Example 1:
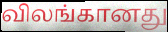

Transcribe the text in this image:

விலங்கானது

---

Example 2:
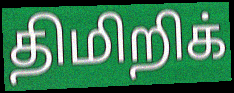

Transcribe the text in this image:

திமிறிக்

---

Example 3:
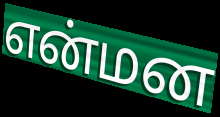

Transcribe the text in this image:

என்மன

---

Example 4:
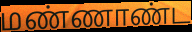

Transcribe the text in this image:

மண்ணாண்ட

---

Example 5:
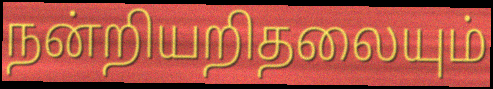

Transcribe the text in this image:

நன்றியறிதலையும்